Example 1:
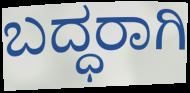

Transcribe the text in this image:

ಬದ್ಧರಾಗಿ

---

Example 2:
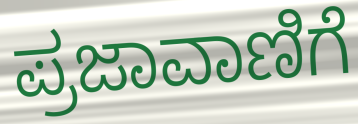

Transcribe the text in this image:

ಪ್ರಜಾವಾಣಿಗೆ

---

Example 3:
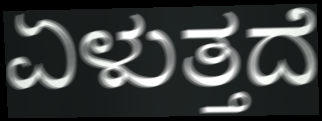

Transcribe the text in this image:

ಏಳುತ್ತದೆ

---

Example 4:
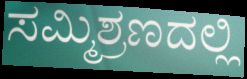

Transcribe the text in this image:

ಸಮ್ಮಿಶ್ರಣದಲ್ಲಿ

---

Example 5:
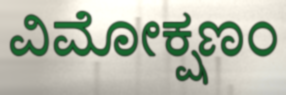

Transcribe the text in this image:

ವಿಮೋಕ್ಷಣಂ